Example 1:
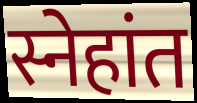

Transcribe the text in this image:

स्नेहांत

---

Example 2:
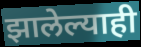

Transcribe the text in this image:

झालेल्याही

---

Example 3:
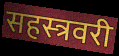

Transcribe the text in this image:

सहस्त्रवरी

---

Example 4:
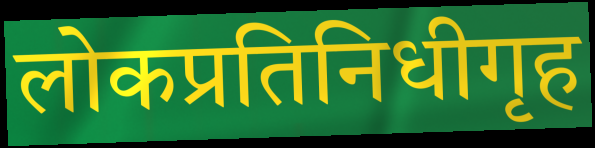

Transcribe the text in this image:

लोकप्रतिनिधीगृह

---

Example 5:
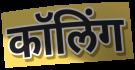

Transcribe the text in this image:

कॉलिंग